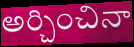
అర్చించినా